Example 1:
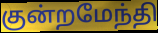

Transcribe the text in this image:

குன்றமேந்தி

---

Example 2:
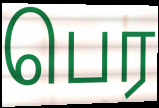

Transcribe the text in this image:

பெர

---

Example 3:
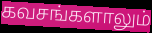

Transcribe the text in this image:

கவசங்களாலும்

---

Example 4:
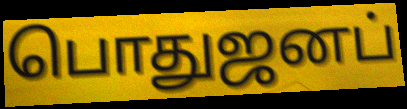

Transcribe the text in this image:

பொதுஜனப்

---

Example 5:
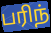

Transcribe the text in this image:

பரிந்